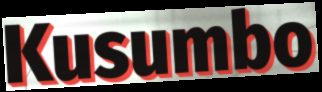
Kusumbo